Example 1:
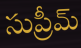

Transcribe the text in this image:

సుప్రీమ్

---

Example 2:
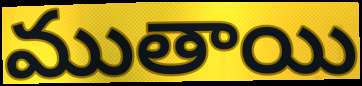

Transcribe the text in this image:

ముతాయి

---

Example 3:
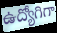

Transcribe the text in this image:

ఉద్యోగిగా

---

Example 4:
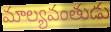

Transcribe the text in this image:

మాల్యవంతుడు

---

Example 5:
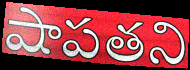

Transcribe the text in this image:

షాపతని